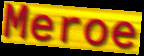
Meroe